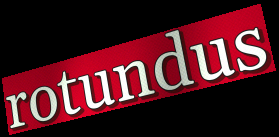
rotundus